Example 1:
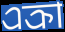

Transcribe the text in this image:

এক্রা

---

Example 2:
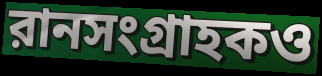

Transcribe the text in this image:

রানসংগ্রাহকও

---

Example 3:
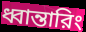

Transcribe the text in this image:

ধ্বান্তারিং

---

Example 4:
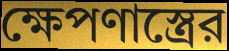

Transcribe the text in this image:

ক্ষেপণাস্ত্রের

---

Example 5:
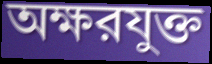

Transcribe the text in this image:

অক্ষরযুক্ত